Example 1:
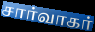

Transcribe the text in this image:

சார்வாகர்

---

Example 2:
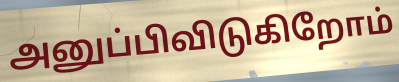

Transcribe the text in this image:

அனுப்பிவிடுகிறோம்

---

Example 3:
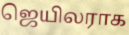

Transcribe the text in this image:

ஜெயிலராக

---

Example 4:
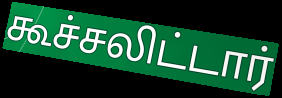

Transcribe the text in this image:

கூச்சலிட்டார்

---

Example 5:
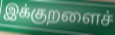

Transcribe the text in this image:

இக்குறளைச்